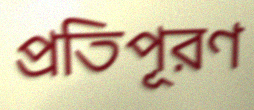
প্রতিপূরণ